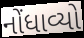
નોંધાવ્યો